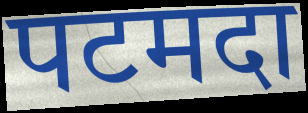
पटमदा